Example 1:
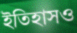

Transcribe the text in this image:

ইতিহাসও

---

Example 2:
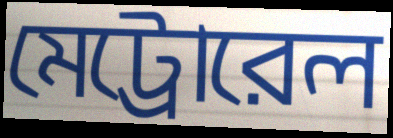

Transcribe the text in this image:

মেট্রোরেল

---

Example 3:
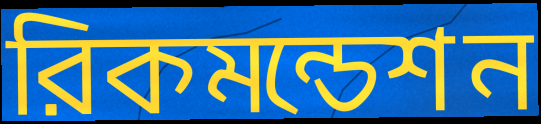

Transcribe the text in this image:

রিকমন্ডেশন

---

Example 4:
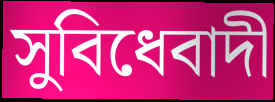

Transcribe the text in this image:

সুবিধেবাদী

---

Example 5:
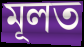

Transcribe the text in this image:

মূলত